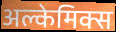
अल्केमिक्स